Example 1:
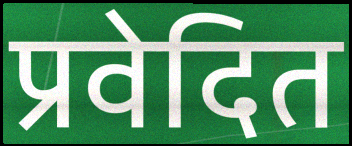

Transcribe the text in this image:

प्रवेदित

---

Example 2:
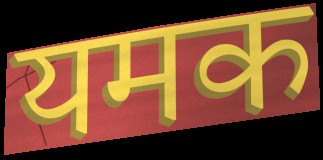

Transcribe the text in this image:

यमक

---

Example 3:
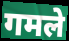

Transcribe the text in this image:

गमले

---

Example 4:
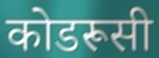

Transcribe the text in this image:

कोडरूसी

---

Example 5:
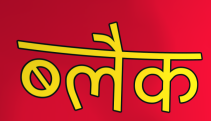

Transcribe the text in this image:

ब्‍लैक